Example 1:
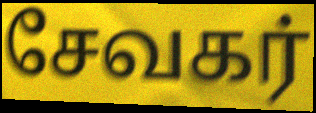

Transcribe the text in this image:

சேவகர்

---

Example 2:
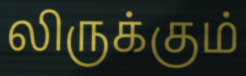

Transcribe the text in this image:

லிருக்கும்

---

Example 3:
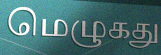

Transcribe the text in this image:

மெழுகது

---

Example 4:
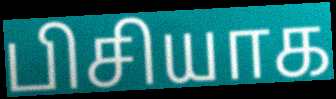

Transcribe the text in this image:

பிசியாக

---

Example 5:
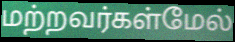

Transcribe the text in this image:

மற்றவர்கள்மேல்